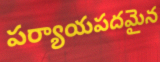
పర్యాయపదమైన